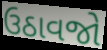
ઉઠાવજો